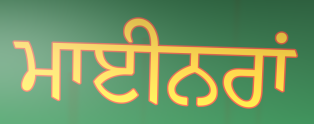
ਮਾਈਨਰਾਂ